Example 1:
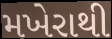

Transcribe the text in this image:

મખેરાથી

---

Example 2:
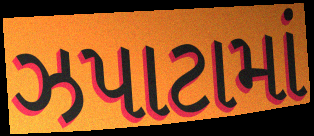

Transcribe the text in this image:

ઝપાટામાં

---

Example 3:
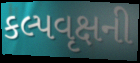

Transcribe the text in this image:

કલ્પવૃક્ષની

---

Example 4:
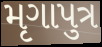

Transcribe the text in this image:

મૃગાપુત્ર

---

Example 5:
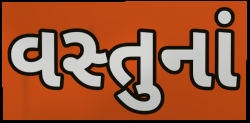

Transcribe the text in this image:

વસ્તુનાં